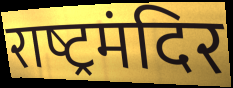
राष्ट्रमंदिर